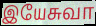
இயேசுவா